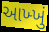
આખ્ખું